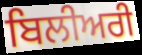
ਬਿਲੀਅਰੀ